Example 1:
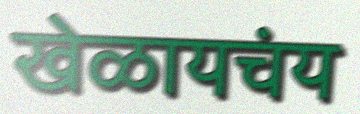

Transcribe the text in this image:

खेळायचंय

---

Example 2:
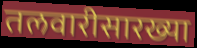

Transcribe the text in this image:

तलवारीसारख्या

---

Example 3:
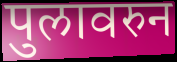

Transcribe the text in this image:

पुलावरुन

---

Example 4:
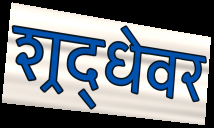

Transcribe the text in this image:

श्रद्धेवर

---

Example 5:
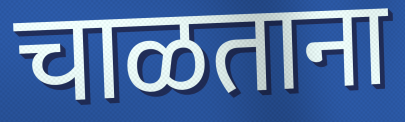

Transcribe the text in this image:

चाळताना